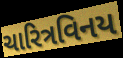
ચારિત્રવિનય